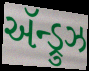
ઍન્ડ્રુઝ